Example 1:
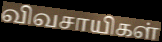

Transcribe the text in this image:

விவசாயிகள்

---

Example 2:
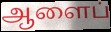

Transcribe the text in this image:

ஆளைப்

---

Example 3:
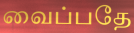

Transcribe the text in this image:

வைப்பதே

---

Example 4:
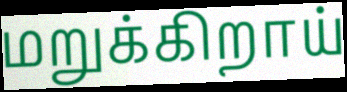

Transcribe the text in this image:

மறுக்கிறாய்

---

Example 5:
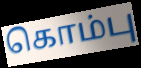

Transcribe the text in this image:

கொம்பு